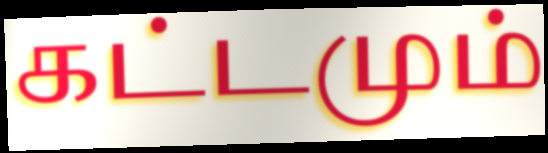
கட்டமும்